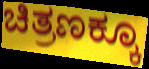
ಚಿತ್ರಣಕ್ಕೂ